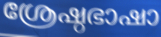
ശ്രേഷ്ഠഭാഷാ